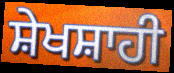
ਸ਼ੇਖਸ਼ਾਹੀ